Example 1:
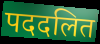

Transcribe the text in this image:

पददलित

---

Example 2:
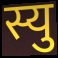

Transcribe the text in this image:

स्यु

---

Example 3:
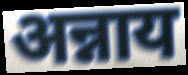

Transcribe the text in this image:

अन्नाय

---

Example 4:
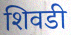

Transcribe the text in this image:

शिवडी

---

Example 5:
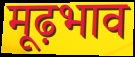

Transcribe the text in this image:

मूढ़भाव